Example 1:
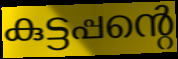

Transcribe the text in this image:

കുട്ടപ്പന്റെ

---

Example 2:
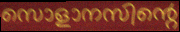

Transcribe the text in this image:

സൊളാനസിന്റെ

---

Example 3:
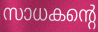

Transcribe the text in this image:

സാധകന്റെ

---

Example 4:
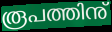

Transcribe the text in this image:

രൂപത്തിനു്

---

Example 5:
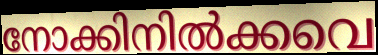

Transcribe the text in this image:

നോക്കിനിൽക്കവെ